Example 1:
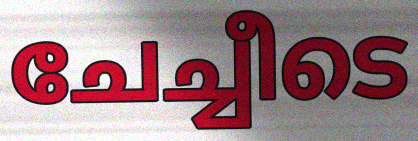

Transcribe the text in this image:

ചേച്ചീടെ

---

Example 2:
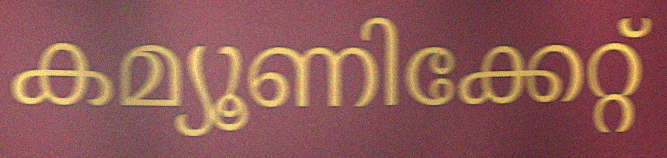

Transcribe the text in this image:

കമ്യൂണിക്കേറ്റ്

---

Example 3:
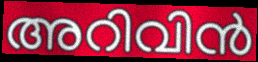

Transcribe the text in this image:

അറിവിൻ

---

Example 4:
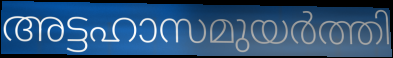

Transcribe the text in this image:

അട്ടഹാസമുയർത്തി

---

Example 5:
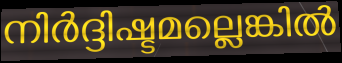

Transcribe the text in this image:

നിർദ്ദിഷ്ടമല്ലെങ്കിൽ